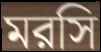
মরসি